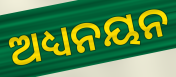
ଅଧ୍ୟନୟନ